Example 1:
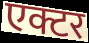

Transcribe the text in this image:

एक्टर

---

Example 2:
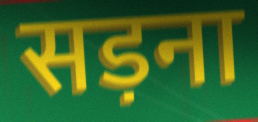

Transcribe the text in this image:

सड़ना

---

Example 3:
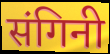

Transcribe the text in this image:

संगिनी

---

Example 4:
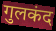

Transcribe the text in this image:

गुलकंद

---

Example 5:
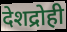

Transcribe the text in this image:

देशद्रोही